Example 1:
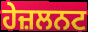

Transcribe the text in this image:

ਹੇਜ਼ਲਨਟ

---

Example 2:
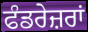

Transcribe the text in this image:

ਫੰਡਰੇਜ਼ਰਾਂ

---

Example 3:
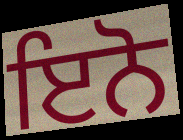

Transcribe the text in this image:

ਇਨੋ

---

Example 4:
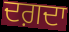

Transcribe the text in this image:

ਦਗ਼ਦਾ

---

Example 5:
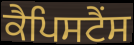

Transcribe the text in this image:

ਕੈਪਿਸਟੈਂਸ